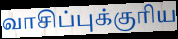
வாசிப்புக்குரிய